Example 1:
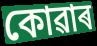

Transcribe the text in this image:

কোৱাৰ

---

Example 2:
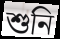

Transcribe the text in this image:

শুনি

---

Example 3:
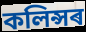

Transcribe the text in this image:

কলিন্সৰ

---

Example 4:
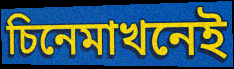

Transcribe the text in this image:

চিনেমাখনেই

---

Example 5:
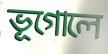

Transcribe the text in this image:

ভূগোলে